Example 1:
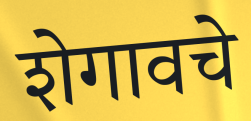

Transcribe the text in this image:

शेगावचे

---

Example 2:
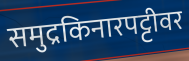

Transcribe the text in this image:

समुद्रकिनारपट्टीवर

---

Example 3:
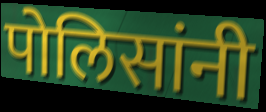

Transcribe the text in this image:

पोलिसांनी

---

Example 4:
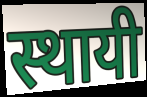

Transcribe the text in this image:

स्थायी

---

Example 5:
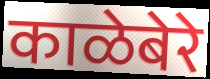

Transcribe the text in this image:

काळेबेरे